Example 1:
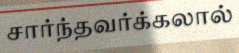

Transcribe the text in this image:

சார்ந்தவர்க்கலால்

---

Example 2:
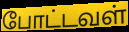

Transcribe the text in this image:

போட்டவள்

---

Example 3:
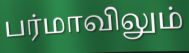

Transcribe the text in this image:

பர்மாவிலும்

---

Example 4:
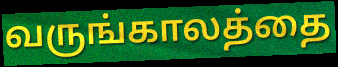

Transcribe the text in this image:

வருங்காலத்தை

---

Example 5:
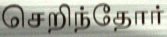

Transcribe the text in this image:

செறிந்தோர்